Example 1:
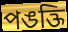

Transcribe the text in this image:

পঙক্তি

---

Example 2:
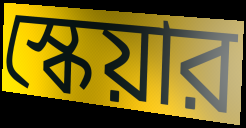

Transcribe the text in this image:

স্কেয়ার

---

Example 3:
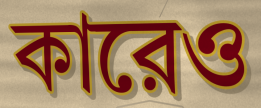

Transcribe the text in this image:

কারেও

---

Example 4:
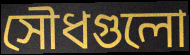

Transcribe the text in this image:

সৌধগুলো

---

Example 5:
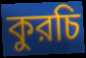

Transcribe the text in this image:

কুরচি